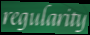
regularity